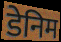
डेनिम